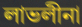
লাভলীনা